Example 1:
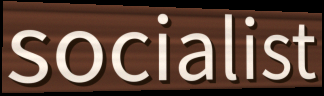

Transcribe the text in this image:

socialist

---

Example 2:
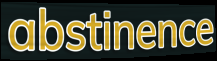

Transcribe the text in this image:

abstinence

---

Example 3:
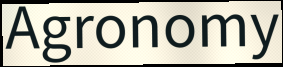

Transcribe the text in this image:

Agronomy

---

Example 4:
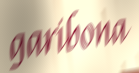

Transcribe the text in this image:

garibona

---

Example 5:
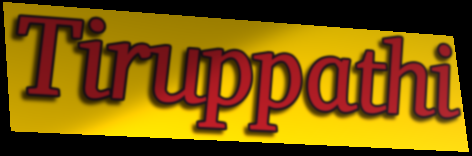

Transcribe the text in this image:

Tiruppathi